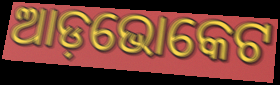
ଆଡ଼ଭୋକେଟ